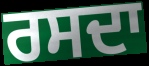
ਰਸਦਾ